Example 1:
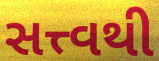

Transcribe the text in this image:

સત્ત્વથી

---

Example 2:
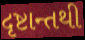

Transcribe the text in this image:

દૃષ્ટાન્તથી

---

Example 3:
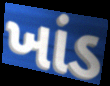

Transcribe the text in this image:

ખાંડ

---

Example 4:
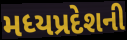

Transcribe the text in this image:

મધ્યપ્રદેશની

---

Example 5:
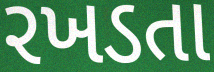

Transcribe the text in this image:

રખડતા